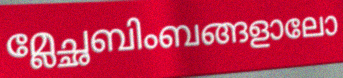
മ്ലേച്ഛബിംബങ്ങളാലോ